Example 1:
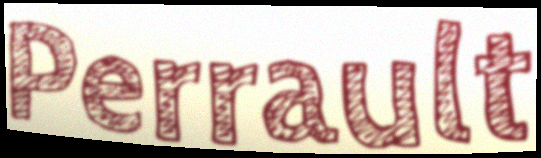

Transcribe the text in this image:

Perrault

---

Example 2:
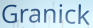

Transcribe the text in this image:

Granick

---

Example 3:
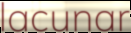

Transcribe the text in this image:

lacunar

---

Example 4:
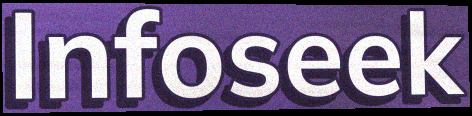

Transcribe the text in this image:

Infoseek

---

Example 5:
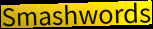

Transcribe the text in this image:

Smashwords